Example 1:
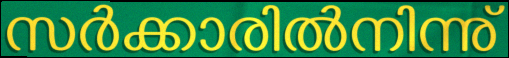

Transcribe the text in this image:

സർക്കാരിൽനിന്നു്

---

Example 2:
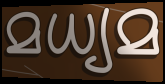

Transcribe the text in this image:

മധ്യമ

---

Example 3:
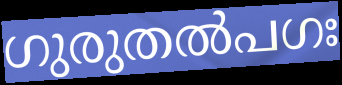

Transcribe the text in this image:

ഗുരുതൽപഗഃ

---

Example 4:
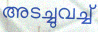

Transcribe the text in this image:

അടച്ചുവച്ച്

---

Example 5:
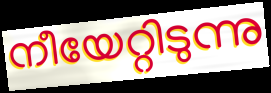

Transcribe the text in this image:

നീയേറ്റിടുന്നു